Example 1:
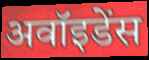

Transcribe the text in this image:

अवॉइडेंस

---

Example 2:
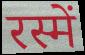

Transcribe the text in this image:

रस्‍में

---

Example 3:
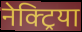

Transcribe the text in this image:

नेक्ट्रिया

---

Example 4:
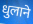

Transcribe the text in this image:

धुलाने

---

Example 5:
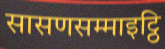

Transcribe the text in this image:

सासणसम्माइट्ठि